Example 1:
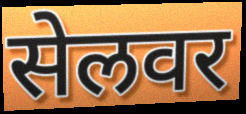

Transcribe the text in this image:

सेलवर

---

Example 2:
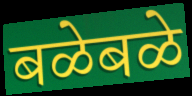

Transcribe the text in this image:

बळेबळे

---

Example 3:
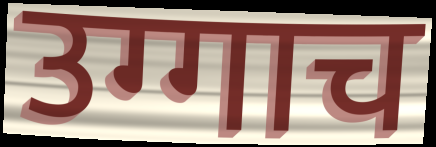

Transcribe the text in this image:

उग्गाच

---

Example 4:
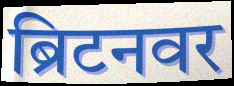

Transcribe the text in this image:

ब्रिटनवर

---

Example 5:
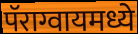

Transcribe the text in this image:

पॅराग्वायमध्ये